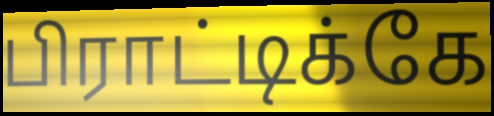
பிராட்டிக்கே